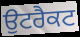
ਉਟਰੈਕਟ